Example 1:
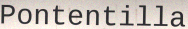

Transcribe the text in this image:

Pontentilla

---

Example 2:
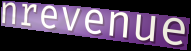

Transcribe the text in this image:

nrevenue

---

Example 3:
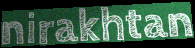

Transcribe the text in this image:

nirakhtan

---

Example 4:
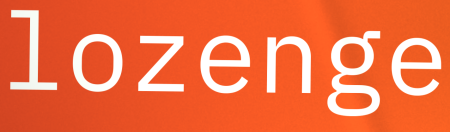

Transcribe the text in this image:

lozenge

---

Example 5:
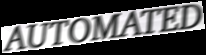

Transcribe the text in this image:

AUTOMATED